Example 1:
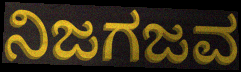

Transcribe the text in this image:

ನಿಜಗಜವ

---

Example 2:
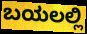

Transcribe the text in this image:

ಬಯಲಲ್ಲಿ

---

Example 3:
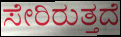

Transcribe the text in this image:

ಸೇರಿರುತ್ತದೆ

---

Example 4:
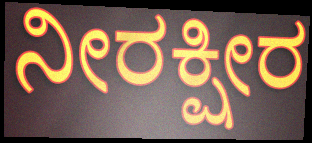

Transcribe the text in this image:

ನೀರಕ್ಷೀರ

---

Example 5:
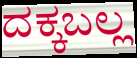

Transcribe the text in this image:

ದಕ್ಕಬಲ್ಲ